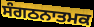
ਸੰਗਠਨਾਤਮਕ